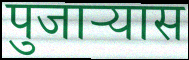
पुजाऱ्यास